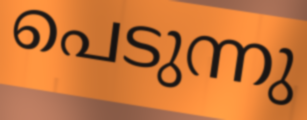
പെടുന്നു